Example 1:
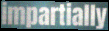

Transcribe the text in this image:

impartially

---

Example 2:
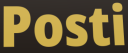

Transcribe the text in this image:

Posti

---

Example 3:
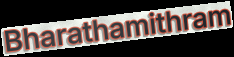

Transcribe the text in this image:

Bharathamithram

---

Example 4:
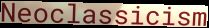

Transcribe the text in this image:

Neoclassicism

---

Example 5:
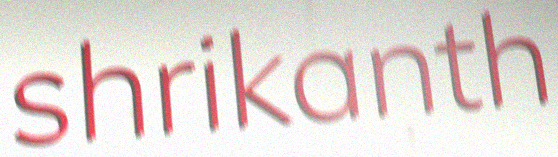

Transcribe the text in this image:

shrikanth